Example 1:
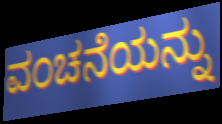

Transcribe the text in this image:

ವಂಚನೆಯನ್ನು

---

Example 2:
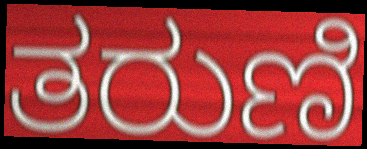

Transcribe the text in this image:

ತರುಣಿ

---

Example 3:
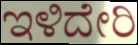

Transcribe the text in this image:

ಇಳಿದೇರಿ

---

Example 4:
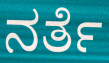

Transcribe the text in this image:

ನರ್ತೆ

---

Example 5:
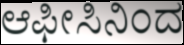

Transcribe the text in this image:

ಆಫೀಸಿನಿಂದ